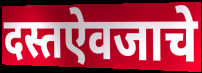
दस्तऐवजाचे